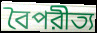
বৈপরীত্য